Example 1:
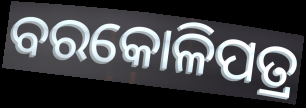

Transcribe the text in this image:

ବରକୋଳିପତ୍ର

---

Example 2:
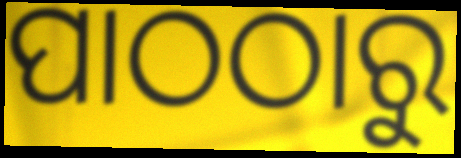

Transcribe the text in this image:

ପାଠଠାରୁ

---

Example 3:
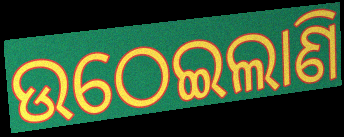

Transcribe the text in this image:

ଉଠେଇଲାଣି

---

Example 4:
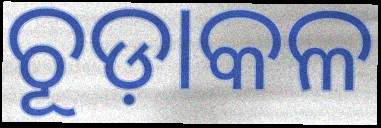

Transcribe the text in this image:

ଚୂଡ଼ାକଳ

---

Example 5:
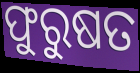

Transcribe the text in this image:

ଫୁରୁଷତ